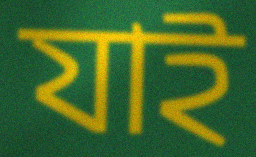
যাই